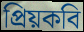
প্রিয়কবি